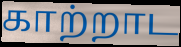
காற்றாட